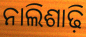
ନାଲିଶାଢ଼ି